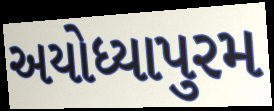
અયોધ્યાપુરમ